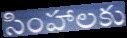
సింహాలకు